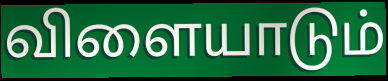
விளையாடும்